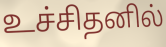
உச்சிதனில்